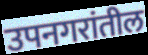
उपनगरांतील